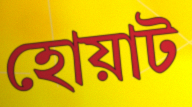
হোয়াট